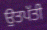
ਉਤਪੱਤੀ